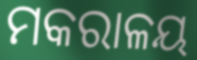
ମକରାଳୟ